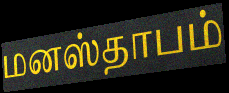
மனஸ்தாபம்